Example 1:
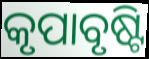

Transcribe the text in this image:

କୃପାବୃଷ୍ଟି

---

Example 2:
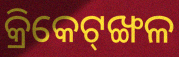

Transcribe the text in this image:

କ୍ରିକେଟ୍‌ଙ୍ଖଳ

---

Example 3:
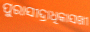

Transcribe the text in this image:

ପୁରାସୀଦ୍ରାଧିକାସଖୀ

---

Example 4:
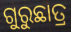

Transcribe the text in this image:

ଗୁରୁଛାତ୍ର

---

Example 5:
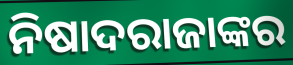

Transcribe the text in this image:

ନିଷାଦରାଜାଙ୍କର